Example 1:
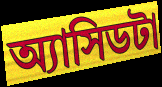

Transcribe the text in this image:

অ্যাসিডটা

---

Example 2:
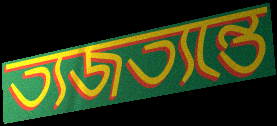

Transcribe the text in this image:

ত্যজত্যন্তে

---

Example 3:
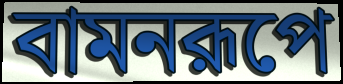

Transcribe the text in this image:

বামনরূপে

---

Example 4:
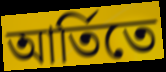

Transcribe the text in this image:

আর্তিতে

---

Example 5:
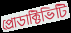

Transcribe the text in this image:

প্রোডাক্টিভিটি